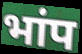
भांप